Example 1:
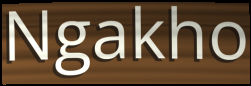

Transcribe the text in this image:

Ngakho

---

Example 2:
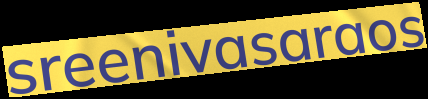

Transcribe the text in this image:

sreenivasaraos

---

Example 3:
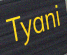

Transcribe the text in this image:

Tyani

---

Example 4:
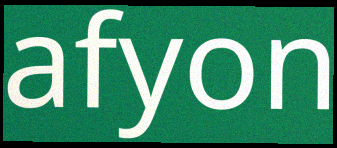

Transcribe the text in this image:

afyon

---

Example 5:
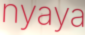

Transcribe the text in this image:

nyaya